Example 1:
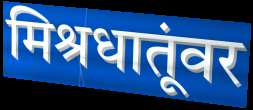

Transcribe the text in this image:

मिश्रधातूंवर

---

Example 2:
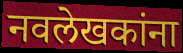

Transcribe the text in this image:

नवलेखकांना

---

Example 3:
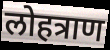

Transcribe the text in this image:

लोहत्राण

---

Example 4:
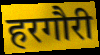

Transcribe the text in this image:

हरगौरी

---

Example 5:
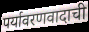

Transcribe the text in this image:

पर्यावरणवादाची